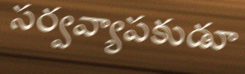
సర్వవ్యాపకుడూ